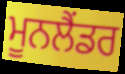
ਮੂਨਲੈਂਡਰ